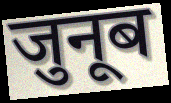
जुनूब